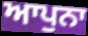
ਆਪੁਨਾ